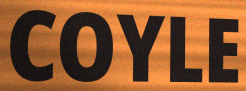
COYLE